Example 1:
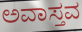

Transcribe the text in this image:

ಅವಾಸ್ತವ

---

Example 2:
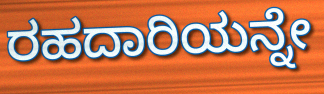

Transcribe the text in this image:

ರಹದಾರಿಯನ್ನೇ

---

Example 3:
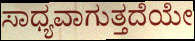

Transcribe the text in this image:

ಸಾಧ್ಯವಾಗುತ್ತದೆಯೇ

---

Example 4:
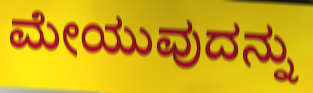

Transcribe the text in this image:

ಮೇಯುವುದನ್ನು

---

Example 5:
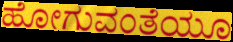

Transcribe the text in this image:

ಹೋಗುವಂತೆಯೂ